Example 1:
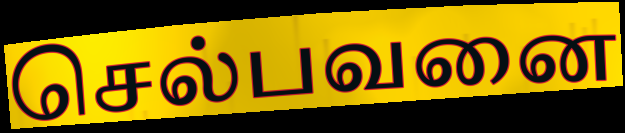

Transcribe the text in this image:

செல்பவனை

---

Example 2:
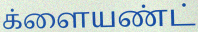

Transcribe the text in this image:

க்ளையண்ட்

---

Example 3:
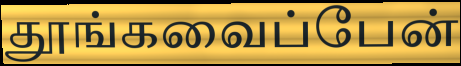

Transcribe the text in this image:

தூங்கவைப்பேன்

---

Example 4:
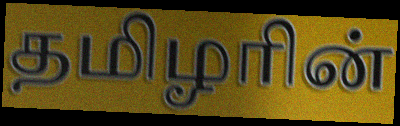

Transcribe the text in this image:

தமிழரின்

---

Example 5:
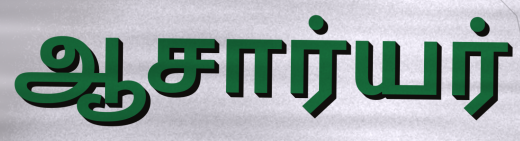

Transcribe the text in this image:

ஆசார்யர்